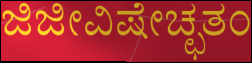
ಜಿಜೀವಿಷೇಚ್ಛತಂ